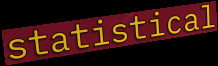
statistical